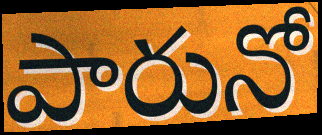
పారునో